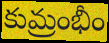
కుమ్రంభీం